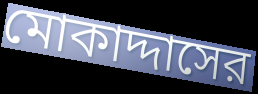
মোকাদ্দাসের